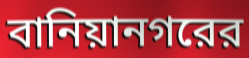
বানিয়ানগরের